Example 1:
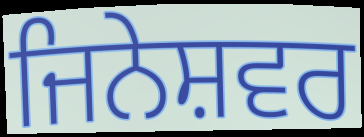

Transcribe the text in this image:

ਜਿਨੇਸ਼ਵਰ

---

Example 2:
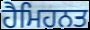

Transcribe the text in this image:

ਹੈਮਿਹਨਤ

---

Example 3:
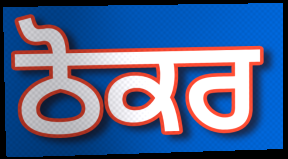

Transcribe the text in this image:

ਠੋਕਰ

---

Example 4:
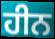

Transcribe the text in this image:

ਹੀਨ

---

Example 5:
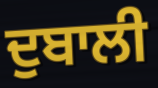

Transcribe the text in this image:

ਦੁਬਾਲੀ